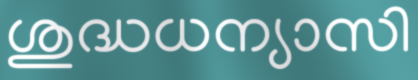
ശുദ്ധധന്യാസി